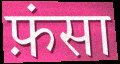
फ़ंसा